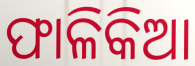
ଫାଳିକିଆ